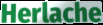
Herlache